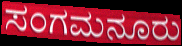
ಸಂಗಮನೂರು